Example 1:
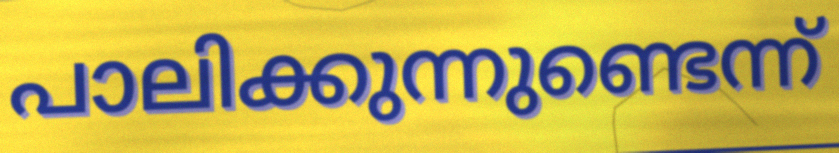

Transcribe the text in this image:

പാലിക്കുന്നുണ്ടെന്ന്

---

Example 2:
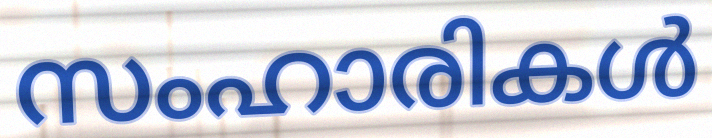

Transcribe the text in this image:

സംഹാരികൾ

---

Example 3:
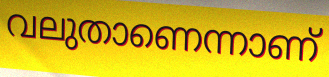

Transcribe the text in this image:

വലുതാണെന്നാണ്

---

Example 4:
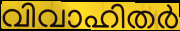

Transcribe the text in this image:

വിവാഹിതർ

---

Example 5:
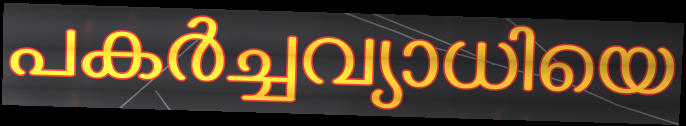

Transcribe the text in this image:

പകർച്ചവ്യാധിയെ